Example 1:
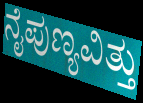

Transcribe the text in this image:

ನೈಪುಣ್ಯವಿತ್ತು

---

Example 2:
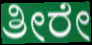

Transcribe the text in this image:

ತೀರೇ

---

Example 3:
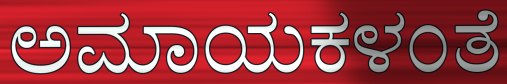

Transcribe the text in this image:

ಅಮಾಯಕಳಂತೆ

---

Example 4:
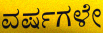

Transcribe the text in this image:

ವರ್ಷಗಳೇ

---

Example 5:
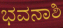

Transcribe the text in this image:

ಭವನಾಶಿ